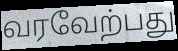
வரவேற்பது